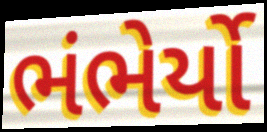
ભંભેર્યો